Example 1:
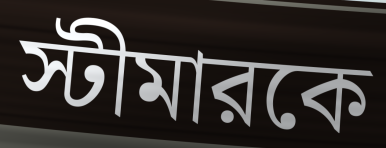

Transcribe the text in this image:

স্টীমারকে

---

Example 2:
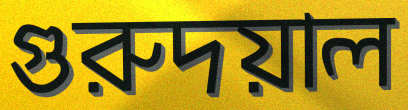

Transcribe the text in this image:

গুরুদয়াল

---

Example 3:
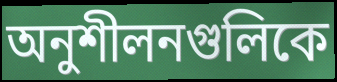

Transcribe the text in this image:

অনুশীলনগুলিকে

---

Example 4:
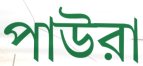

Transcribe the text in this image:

পাউরা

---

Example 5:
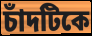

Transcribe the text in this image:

চাঁদটিকে